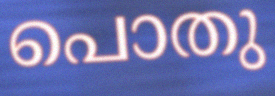
പൊതു